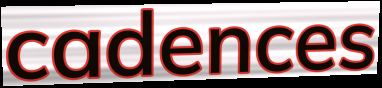
cadences